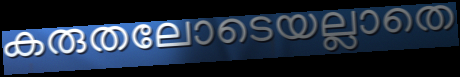
കരുതലോടെയല്ലാതെ